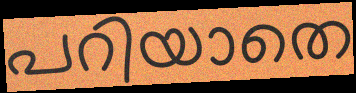
പറിയാതെ